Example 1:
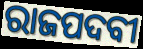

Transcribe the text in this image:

ରାଜପଦବୀ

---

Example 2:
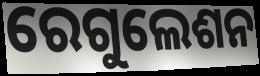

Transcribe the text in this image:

ରେଗୁଲେଶନ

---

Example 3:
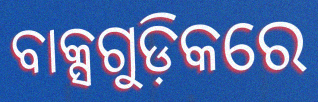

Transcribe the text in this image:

ବାକ୍ସଗୁଡ଼ିକରେ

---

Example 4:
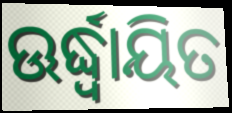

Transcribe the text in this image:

ଊର୍ଦ୍ଧ୍ୱାୟିତ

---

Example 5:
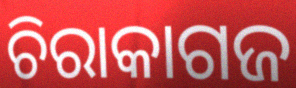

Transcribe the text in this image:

ଚିରାକାଗଜ